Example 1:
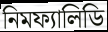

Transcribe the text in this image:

নিমফ্যালিডি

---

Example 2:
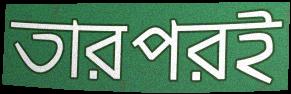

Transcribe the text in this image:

তারপরই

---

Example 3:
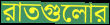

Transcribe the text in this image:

রাতগুলোর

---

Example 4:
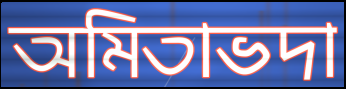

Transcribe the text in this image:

অমিতাভদা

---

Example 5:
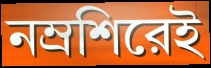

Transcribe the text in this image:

নম্রশিরেই